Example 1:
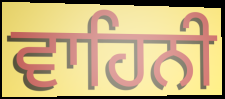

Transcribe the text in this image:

ਵਾਹਿਨੀ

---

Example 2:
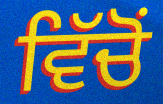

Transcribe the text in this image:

ਵਿੱਚੋੰ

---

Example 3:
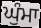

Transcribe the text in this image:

ਘੁੰਮਾ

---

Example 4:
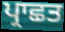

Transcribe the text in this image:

ਪ੍ਰਾਛਤ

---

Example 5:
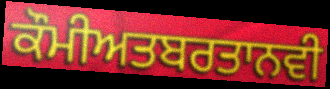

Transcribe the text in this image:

ਕੌਮੀਅਤਬਰਤਾਨਵੀ